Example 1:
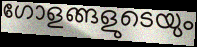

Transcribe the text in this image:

ഗോളങ്ങളുടെയും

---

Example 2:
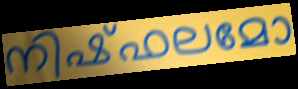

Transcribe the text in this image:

നിഷ്ഫലമോ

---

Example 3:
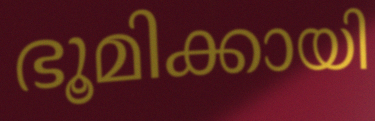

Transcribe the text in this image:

ഭൂമിക്കായി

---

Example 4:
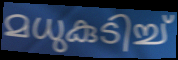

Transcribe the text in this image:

മധുകുടിച്ച്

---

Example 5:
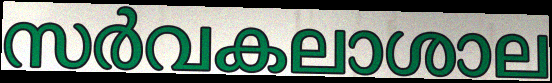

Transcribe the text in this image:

സർവകലാശാല